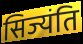
सिज्यंति